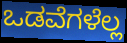
ಒಡವೆಗಳೆಲ್ಲ